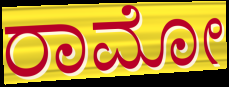
ರಾಮೋ